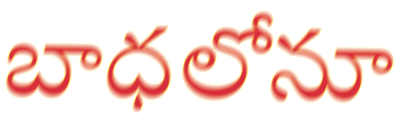
బాధలోనూ